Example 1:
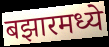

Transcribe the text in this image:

बझारमध्ये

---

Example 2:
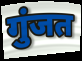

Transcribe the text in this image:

गुंजत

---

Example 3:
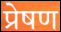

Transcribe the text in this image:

प्रेषण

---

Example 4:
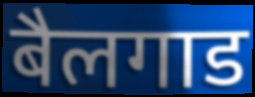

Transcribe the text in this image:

बैलगाड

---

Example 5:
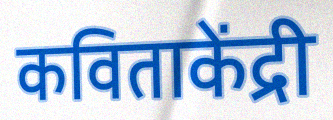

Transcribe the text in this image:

कविताकेंद्री